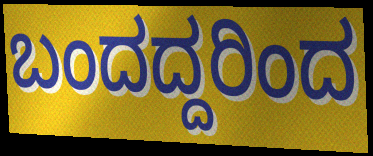
ಬಂದದ್ದರಿಂದ